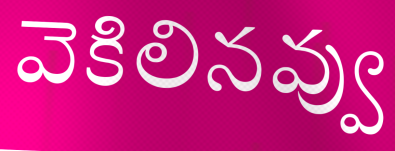
వెకిలినవ్వు